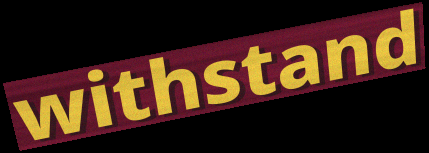
withstand